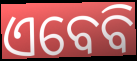
ଏବେବି